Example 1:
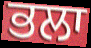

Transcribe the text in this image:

ਭਲਾ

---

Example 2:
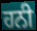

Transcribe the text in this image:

ਹਨੀ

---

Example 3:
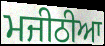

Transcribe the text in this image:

ਮਜੀਠੀਆ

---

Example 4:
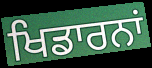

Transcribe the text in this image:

ਖਿਡਾਰਨਾਂ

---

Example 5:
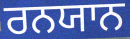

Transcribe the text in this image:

ਰਨਯਾਨ